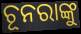
ଚୂନରାଙ୍କୁ